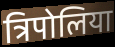
त्रिपोलिया